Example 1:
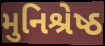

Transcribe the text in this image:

મુનિશ્રેષ્ઠ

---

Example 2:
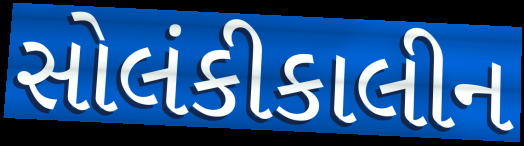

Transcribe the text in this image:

સોલંકીકાલીન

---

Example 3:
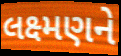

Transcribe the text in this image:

લક્ષ્મણને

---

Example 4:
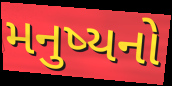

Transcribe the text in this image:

મનુષ્યનો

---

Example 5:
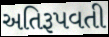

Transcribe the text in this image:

અતિરૂપવતી